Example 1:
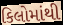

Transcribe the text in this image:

કિલોમાંથી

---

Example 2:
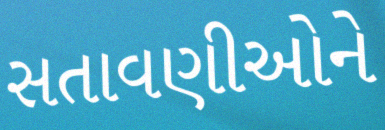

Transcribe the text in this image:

સતાવણીઓને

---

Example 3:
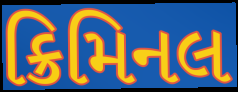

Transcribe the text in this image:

ક્રિમિનલ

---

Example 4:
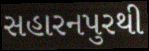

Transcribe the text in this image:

સહારનપુરથી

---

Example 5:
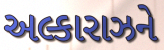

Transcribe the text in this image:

અલ્કારાઝને